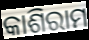
କାଶିରାମ